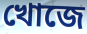
খোজে